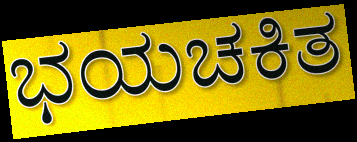
ಭಯಚಕಿತ